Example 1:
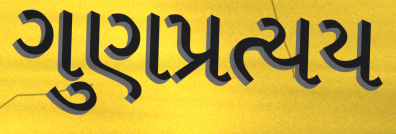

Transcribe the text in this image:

ગુણપ્રત્યય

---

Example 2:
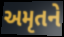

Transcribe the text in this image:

અમૃતને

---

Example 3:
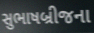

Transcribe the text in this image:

સુભાષબ્રીજના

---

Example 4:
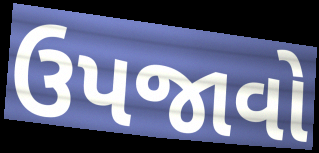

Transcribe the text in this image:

ઉપજાવો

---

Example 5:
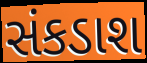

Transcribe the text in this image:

સંકડાશ